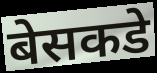
बेसकडे